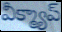
వీక్మ్యాప్